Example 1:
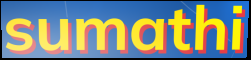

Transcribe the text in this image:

sumathi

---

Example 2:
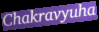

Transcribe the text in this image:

Chakravyuha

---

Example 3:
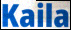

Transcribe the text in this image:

Kaila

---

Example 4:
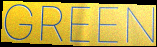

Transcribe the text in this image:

GREEN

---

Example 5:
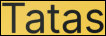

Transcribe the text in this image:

Tatas